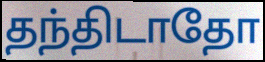
தந்திடாதோ